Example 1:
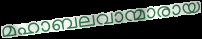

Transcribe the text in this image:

മഹാബലവാന്മാരായ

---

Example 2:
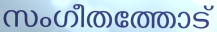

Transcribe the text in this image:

സംഗീതത്തോട്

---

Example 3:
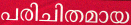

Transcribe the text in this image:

പരിചിതമായ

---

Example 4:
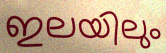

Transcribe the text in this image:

ഇലയിലും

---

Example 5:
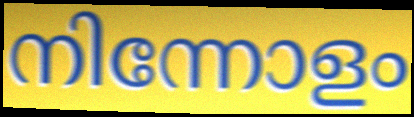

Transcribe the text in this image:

നിന്നോളം